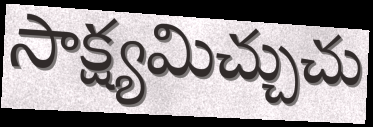
సాక్ష్యమిచ్చుచు